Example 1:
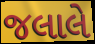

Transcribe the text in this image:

જલાલે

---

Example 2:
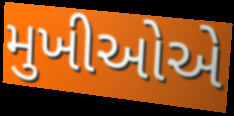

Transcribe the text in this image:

મુખીઓએ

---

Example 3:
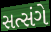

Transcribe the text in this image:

સત્સંગે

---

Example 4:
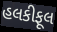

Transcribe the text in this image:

હલકીફૂલ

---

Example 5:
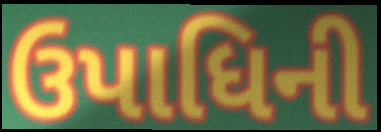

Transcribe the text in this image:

ઉપાધિની